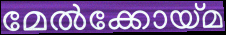
മേൽക്കോയ്മ